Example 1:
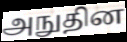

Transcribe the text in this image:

அநுதின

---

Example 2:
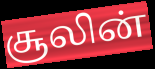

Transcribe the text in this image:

சூலின்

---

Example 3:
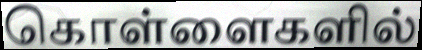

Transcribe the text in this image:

கொள்ளைகளில்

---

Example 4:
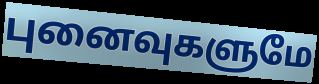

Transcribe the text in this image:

புனைவுகளுமே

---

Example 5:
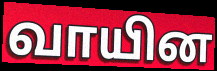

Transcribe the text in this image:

வாயின